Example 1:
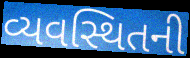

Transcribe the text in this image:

વ્યવસ્થિતની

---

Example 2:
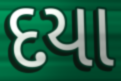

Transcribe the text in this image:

દયા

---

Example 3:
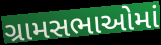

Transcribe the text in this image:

ગ્રામસભાઓમાં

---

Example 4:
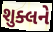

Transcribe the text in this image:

શુક્લને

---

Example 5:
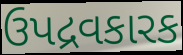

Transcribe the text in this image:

ઉપદ્રવકારક